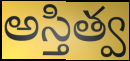
అస్తిత్వ